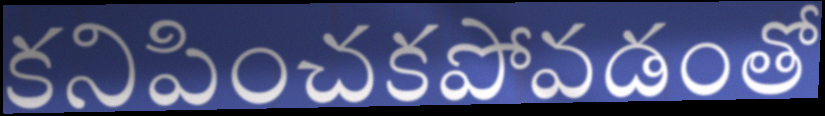
కనిపించకపోవడంతో